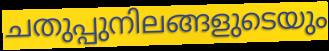
ചതുപ്പുനിലങ്ങളുടെയും